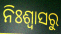
ନିଃଶ୍ବାସରୁ